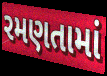
રમણતામાં